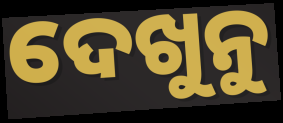
ଦେଖୁନୁ